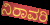
ನಿರಾವರಿ